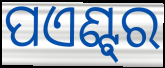
ପଏଣ୍ଟ୍‌ର